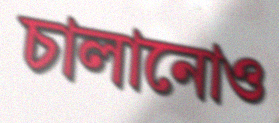
চালানোও